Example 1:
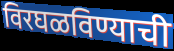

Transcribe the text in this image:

विरघळविण्याची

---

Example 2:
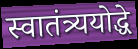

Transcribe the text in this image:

स्वातंत्र्ययोद्धे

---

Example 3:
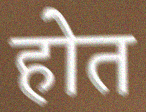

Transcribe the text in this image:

होत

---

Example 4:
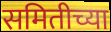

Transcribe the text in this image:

समितीच्‍या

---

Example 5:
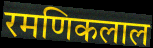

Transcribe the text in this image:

रमणिकलाल